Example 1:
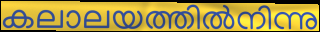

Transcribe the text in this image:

കലാലയത്തിൽനിന്നു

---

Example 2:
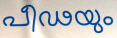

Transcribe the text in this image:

പീഢയും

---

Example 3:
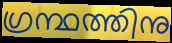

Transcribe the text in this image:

ഗ്രന്ഥത്തിനു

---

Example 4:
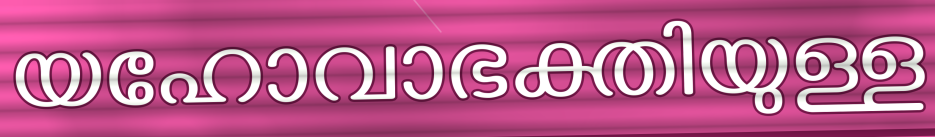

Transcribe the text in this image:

യഹോവാഭക്തിയുള്ള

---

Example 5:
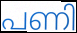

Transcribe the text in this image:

പണി